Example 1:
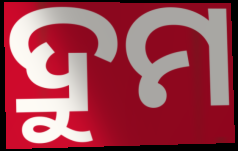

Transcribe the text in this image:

ଦ୍ରୁମ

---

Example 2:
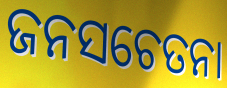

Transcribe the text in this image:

ଜନସଚେତନା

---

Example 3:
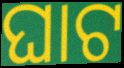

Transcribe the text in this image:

ଘାଟ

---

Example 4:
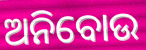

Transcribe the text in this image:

ଅନିବୋଉ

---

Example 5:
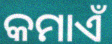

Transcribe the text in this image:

କମାଏଁ